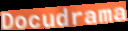
Docudrama